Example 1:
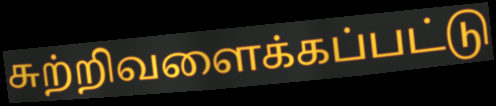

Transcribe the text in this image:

சுற்றிவளைக்கப்பட்டு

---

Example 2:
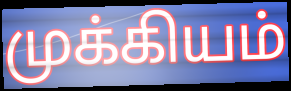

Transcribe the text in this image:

முக்கியம்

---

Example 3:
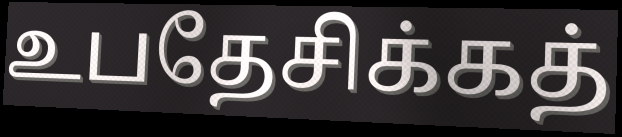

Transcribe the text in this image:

உபதேசிக்கத்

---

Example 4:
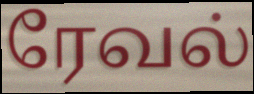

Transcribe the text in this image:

ரேவல்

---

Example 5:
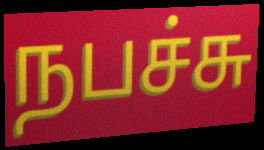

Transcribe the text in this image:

நபச்சு